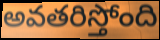
అవతరిస్తోంది